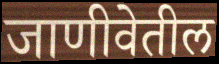
जाणीवेतील